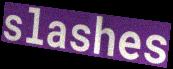
slashes